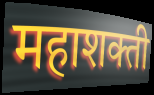
महाशक्ती